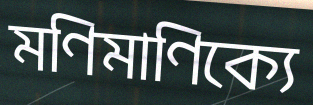
মণিমাণিক্যে